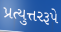
પ્રત્યુત્તરરૂપે